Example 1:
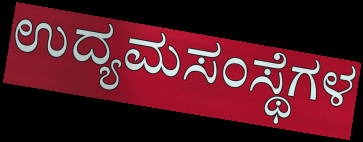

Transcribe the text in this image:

ಉದ್ಯಮಸಂಸ್ಥೆಗಳ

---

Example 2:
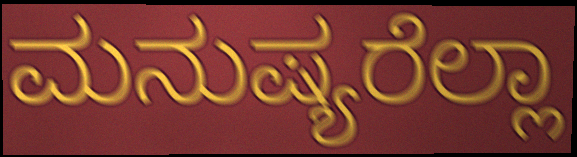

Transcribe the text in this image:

ಮನುಷ್ಯರೆಲ್ಲಾ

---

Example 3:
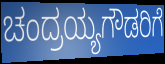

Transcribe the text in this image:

ಚಂದ್ರಯ್ಯಗೌಡರಿಗೆ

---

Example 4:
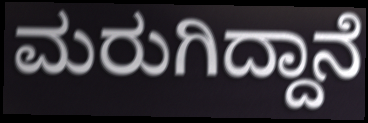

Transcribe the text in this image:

ಮರುಗಿದ್ದಾನೆ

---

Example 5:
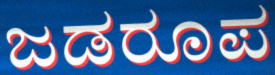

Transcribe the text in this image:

ಜಡರೂಪ